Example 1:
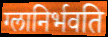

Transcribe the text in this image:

ग्लानिर्भवति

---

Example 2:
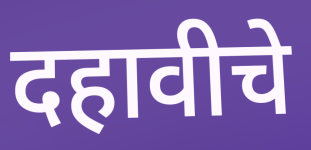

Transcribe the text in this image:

दहावीचे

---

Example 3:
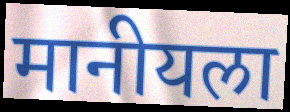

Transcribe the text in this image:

मानीयला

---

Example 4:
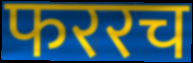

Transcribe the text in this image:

फररच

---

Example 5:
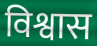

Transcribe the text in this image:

विश्वास